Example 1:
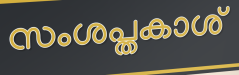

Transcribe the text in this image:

സംശപ്തകാശ്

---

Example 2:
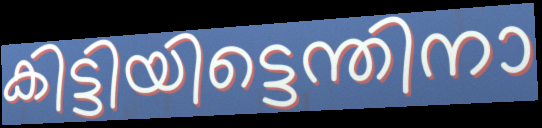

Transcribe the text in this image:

കിട്ടിയിട്ടെന്തിനാ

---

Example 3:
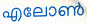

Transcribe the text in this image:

എലോൺ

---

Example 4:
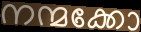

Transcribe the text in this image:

നന്മക്കോ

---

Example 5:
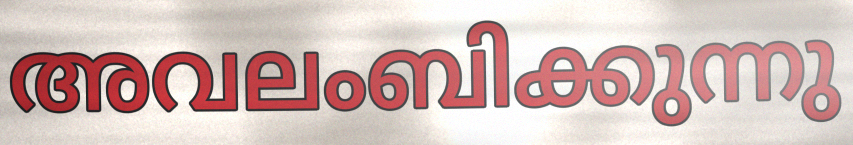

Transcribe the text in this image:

അവലംബിക്കുന്നു